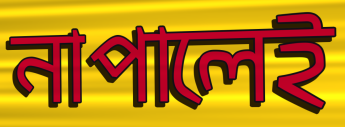
নাপালেই